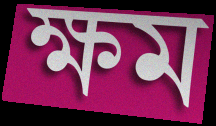
ক্ষম